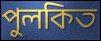
পুলকিত